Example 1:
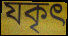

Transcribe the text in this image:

যকৃৎ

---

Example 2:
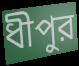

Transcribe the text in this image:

ধীপুর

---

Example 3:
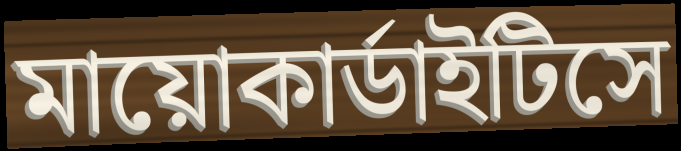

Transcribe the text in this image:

মায়োকার্ডাইটিসে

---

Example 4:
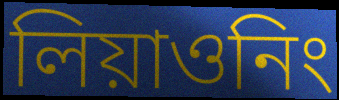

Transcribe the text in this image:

লিয়াওনিং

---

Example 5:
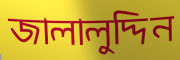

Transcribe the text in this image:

জালালুদ্দিন